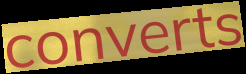
converts